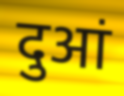
दुआं